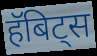
हॅबिट्स